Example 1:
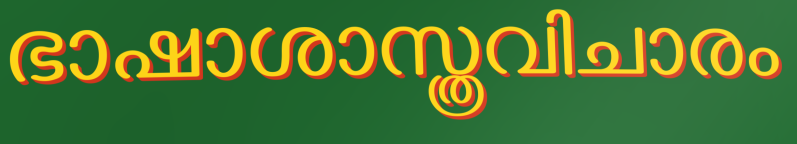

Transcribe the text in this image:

ഭാഷാശാസ്ത്രവിചാരം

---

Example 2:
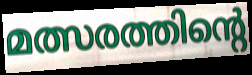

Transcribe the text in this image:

മത്സരത്തിന്റെ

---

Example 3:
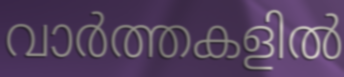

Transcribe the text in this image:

വാർത്തകളിൽ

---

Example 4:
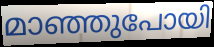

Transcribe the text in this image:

മാഞ്ഞുപോയി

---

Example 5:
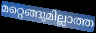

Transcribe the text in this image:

മറ്റെങ്ങുമില്ലാത്ത